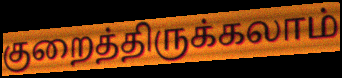
குறைத்திருக்கலாம்